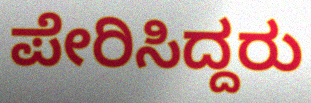
ಪೇರಿಸಿದ್ದರು